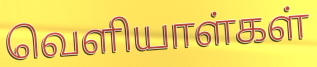
வெளியாள்கள்